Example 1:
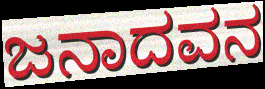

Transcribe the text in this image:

ಜನಾದವನ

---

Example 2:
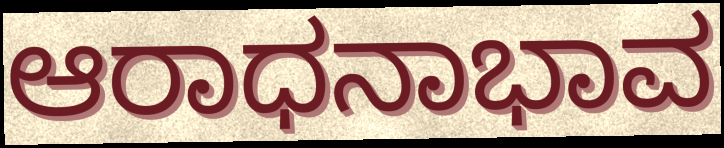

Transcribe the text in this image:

ಆರಾಧನಾಭಾವ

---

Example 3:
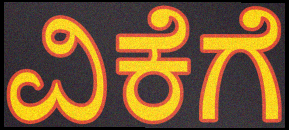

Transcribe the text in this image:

ವಿಕೆಗೆ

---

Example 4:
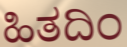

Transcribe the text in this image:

ಹಿತದಿಂ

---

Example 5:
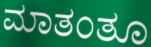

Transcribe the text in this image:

ಮಾತಂತೂ